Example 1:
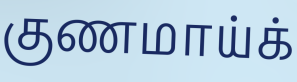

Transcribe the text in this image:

குணமாய்க்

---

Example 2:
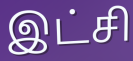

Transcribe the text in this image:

இட்சி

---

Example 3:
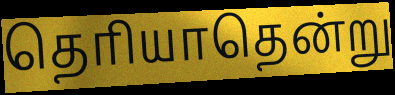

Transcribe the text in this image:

தெரியாதென்று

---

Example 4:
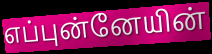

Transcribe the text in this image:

எப்புன்னேயின்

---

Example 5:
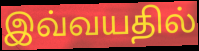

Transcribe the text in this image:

இவ்வயதில்